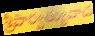
శ్రీపార్వత్యువాచ